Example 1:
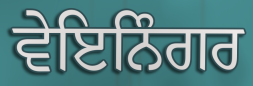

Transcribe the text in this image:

ਵੇਇਨਿੰਗਰ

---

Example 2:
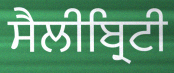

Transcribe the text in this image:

ਸੈਲੀਬ੍ਰਿਟੀ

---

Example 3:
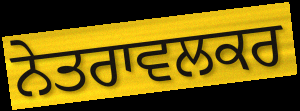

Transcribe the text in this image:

ਨੇਤਰਾਵਲਕਰ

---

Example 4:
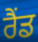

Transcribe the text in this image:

ਰੈਂਡ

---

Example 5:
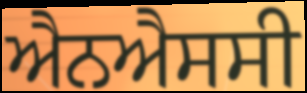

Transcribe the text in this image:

ਐਨਐਸਸੀ